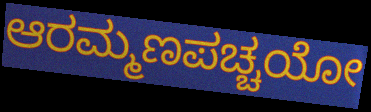
ಆರಮ್ಮಣಪಚ್ಚಯೋ